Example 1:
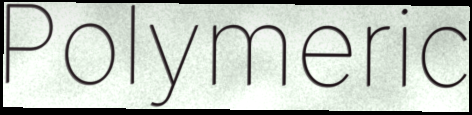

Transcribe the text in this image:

Polymeric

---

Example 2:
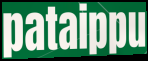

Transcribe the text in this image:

pataippu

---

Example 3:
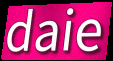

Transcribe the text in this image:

daie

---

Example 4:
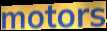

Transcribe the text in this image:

motors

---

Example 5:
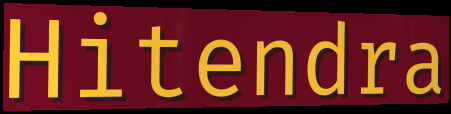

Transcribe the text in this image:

Hitendra